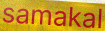
samakal